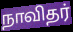
நாவிதர்